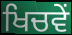
ਖਿਚਵੇਂ